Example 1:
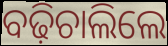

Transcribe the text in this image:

ବଢ଼ିଚାଲିଲେ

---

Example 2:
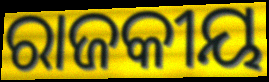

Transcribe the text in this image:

ରାଜକୀୟ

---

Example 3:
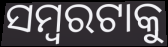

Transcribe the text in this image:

ସମ୍ବରଟାକୁ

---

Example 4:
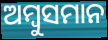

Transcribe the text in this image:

ଅମ୍ବୁସମାନ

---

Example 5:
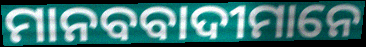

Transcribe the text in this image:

ମାନବବାଦୀମାନେ